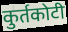
कुर्तकोटी